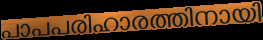
പാപപരിഹാരത്തിനായി